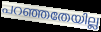
പറഞ്ഞതേയില്ല